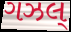
ગઝલ્